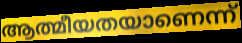
ആത്മീയതയാണെന്ന്